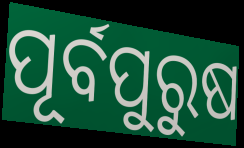
ପୂର୍ବପୁରୁଷ